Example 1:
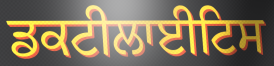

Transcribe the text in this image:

ਡਕਟੀਲਾਈਟਿਸ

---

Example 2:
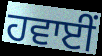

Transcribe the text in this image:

ਹਵਾਈਂ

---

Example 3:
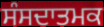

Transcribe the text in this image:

ਸੰਸਦਾਤਮਕ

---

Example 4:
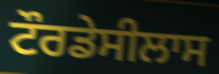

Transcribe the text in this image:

ਟੌਰਡੇਸੀਲਾਸ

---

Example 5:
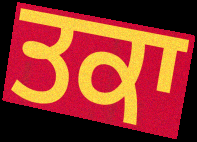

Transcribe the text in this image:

ਤਕਾ